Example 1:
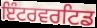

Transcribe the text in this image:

ਇੰਟਰਵਰਟਿਡ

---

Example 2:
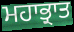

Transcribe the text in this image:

ਮਹਾਭ੍ਰਾਤ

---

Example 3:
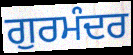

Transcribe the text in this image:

ਗੁਰਮੰਦਰ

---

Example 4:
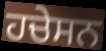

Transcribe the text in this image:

ਹਚੇਸਨ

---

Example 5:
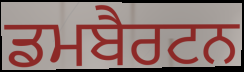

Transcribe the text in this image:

ਡਮਬੈਰਟਨ